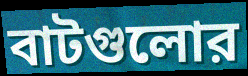
বাটগুলোর